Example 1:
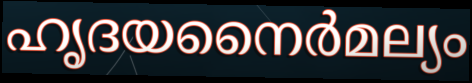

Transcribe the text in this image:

ഹൃദയനൈർമല്യം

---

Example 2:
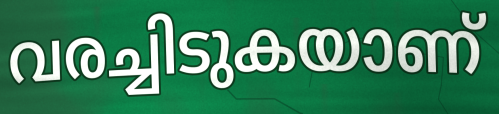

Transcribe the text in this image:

വരച്ചിടുകയാണ്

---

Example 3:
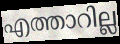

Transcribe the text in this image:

എത്താറില്ല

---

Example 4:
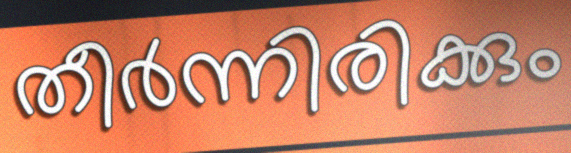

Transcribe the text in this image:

തീർന്നിരിക്കും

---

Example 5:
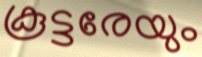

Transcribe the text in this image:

കൂട്ടരേയും